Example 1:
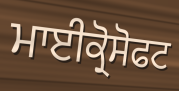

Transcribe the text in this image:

ਮਾਈਕ੍ਰੋਸੋਫਟ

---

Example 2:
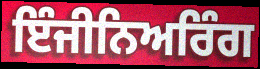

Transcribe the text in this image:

ਇੰਜੀਨਿਅਰਿੰਗ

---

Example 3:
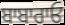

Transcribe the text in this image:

ਬਾਬਾਰਾਓ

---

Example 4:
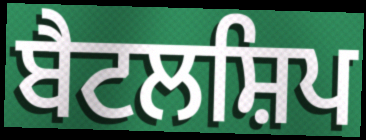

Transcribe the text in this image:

ਬੈਟਲਸ਼ਿਪ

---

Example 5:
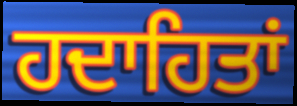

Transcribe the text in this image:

ਹਦਾਹਿਤਾਂ